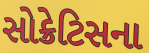
સોક્રેટિસના